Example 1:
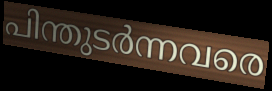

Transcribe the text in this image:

പിന്തുടർന്നവരെ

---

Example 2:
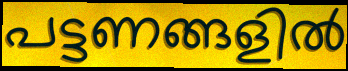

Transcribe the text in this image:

പട്ടണങ്ങളിൽ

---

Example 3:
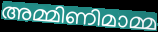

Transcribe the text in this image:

അമ്മിണിമാമ്മ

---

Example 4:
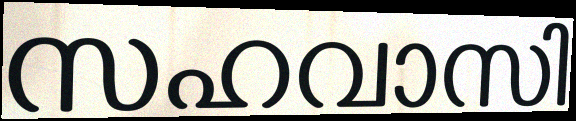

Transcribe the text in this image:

സഹവാസി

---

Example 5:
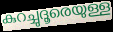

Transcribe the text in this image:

കുറച്ചുദൂരെയുള്ള